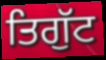
ਤਿਗੁੱਟ